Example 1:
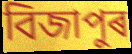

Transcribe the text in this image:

বিজাপুৰ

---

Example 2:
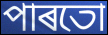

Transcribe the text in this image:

পাৰতো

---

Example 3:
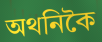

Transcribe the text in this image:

অথনিকৈ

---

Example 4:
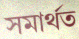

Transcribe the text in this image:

সমাৰ্থত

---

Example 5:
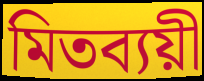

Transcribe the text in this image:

মিতব্যয়ী